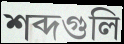
শব্দগুলি